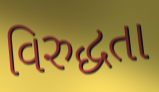
વિરુદ્ધતા